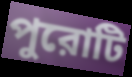
পুরোটি